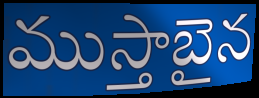
ముస్తాబైన